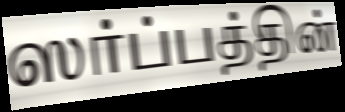
ஸர்ப்பத்தின்